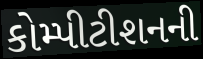
કોમ્પીટીશનની